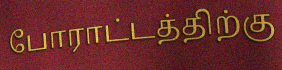
போராட்டத்திற்கு